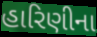
હારિણીના